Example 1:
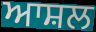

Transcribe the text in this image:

ਆਸ਼ਲ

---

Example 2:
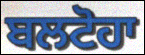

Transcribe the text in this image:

ਬਲਟੋਹਾ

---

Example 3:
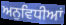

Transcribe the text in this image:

ਅਨੁਵਿਧੀਆਂ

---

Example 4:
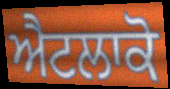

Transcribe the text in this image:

ਐਟਲਾਕੋ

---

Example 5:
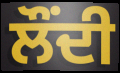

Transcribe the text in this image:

ਲੌਂਦੀ